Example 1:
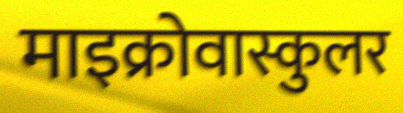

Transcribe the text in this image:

माइक्रोवास्कुलर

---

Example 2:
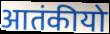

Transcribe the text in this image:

आतंकीयो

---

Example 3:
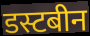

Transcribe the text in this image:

डस्टबीन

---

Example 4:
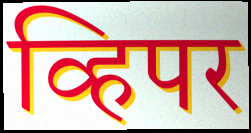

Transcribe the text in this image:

व्हिपर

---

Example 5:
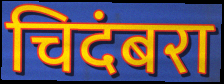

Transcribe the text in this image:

चिदंबरा